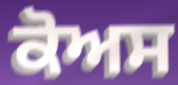
ਕੋਅਸ